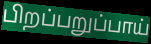
பிறப்பறுப்பாய்